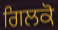
ਗਿਲਕੋ